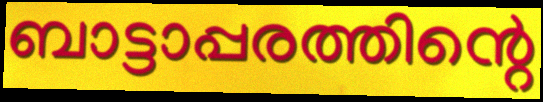
ബാട്ടാപ്പരത്തിന്റെ